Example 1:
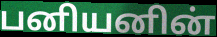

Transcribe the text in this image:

பனியனின்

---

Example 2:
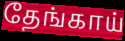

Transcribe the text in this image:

தேங்காய்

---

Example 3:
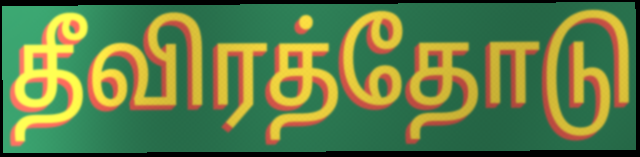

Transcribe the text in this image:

தீவிரத்தோடு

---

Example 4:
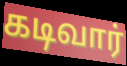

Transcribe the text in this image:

கடிவார்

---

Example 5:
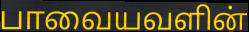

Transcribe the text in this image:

பாவையவளின்